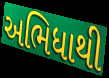
અભિધાથી